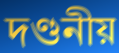
দণ্ডনীয়